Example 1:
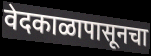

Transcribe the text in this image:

वेदकाळापासूनचा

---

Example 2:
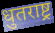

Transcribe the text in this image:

धुतराष्ट्र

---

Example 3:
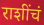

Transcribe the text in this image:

राशींचं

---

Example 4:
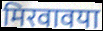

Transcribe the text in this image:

मिरवावया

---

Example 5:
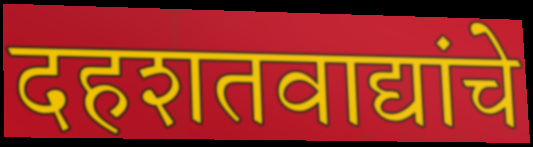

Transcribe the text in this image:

दहशतवाद्यांचे